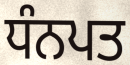
ਧੰਨਪਤ